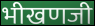
भीखणजी